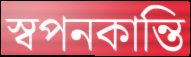
স্বপনকান্তি